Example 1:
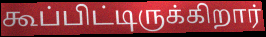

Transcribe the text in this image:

கூப்பிட்டிருக்கிறார்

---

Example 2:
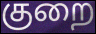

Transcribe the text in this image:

குறை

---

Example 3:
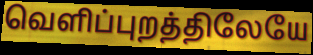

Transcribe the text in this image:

வெளிப்புறத்திலேயே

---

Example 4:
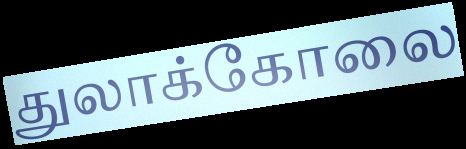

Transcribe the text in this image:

துலாக்கோலை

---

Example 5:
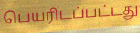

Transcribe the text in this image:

பெயரிடப்பட்டது